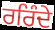
ਰਰਿੰਦੇ